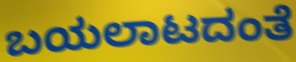
ಬಯಲಾಟದಂತೆ